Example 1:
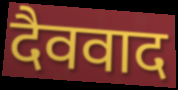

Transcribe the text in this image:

दैववाद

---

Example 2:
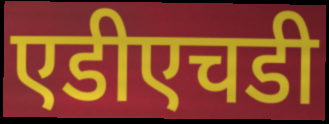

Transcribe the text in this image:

एडीएचडी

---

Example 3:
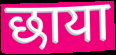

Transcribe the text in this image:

छाया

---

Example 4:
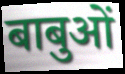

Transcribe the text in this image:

बाबुओं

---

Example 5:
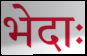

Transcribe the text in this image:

भेदाः